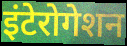
इंटेरोगेशन